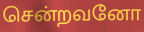
சென்றவனோ